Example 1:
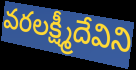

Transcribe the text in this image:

వరలక్ష్మీదేవిని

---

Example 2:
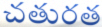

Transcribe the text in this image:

చతురత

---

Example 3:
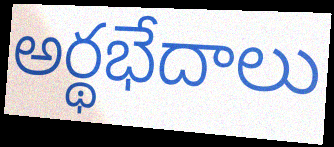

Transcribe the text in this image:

అర్థభేదాలు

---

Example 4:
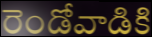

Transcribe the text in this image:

రెండోవాడికి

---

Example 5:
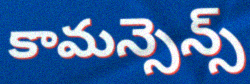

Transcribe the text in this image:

కామన్సెన్స్